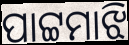
ପାଟ୍ଟମାଝି